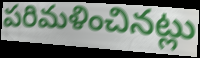
పరిమళించినట్లు